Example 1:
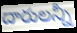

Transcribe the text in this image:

దారులన్నీ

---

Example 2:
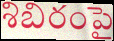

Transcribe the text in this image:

శిబిరంపై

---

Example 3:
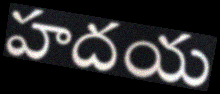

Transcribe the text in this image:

హదయ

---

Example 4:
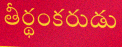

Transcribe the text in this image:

తీర్థంకరుడు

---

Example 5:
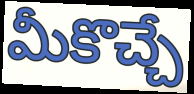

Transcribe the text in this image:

మీకొచ్చే